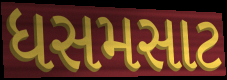
ધસમસાટ